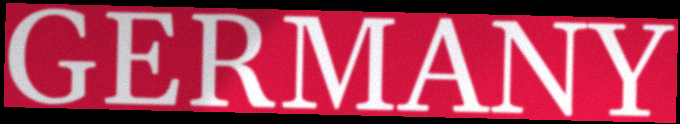
GERMANY